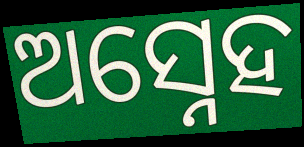
ଅସ୍ନେହ